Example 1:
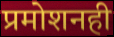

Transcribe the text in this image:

प्रमोशनही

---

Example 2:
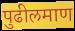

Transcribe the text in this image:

पुढीलमाण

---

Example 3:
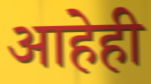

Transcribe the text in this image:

आहेही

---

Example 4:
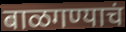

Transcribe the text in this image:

बाळगण्याचं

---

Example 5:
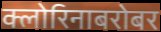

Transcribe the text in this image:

क्लोरिनाबरोबर